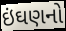
ઇંઘણનો